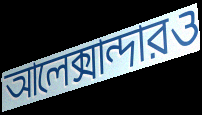
আলেক্সান্দারও